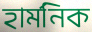
হার্মনিক